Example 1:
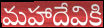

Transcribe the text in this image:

మహాదేవికి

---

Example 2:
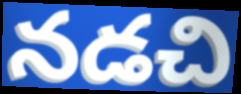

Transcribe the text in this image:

నడచి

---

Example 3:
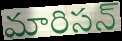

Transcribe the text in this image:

మారిసన్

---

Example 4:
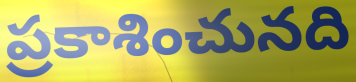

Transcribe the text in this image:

ప్రకాశించునది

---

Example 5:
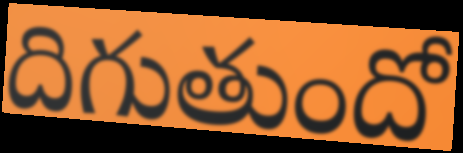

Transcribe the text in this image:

దిగుతుందో